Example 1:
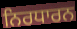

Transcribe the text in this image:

ਨਿਰਧਾਰਨ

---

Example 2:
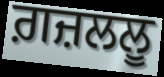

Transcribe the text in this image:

ਗ਼ਜ਼ਲਲੂ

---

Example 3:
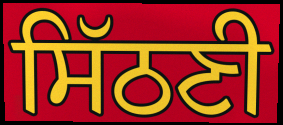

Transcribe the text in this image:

ਸਿੱਠਣੀ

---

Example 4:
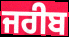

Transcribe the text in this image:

ਜਰੀਬ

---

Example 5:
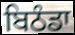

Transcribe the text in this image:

ਬਿਠੰਡਾ